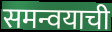
समन्वयाची